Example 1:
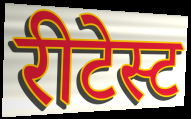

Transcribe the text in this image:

रीटेस्ट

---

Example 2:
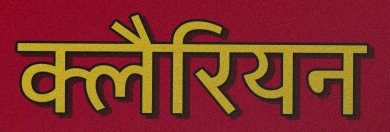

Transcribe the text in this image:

क्लैरियन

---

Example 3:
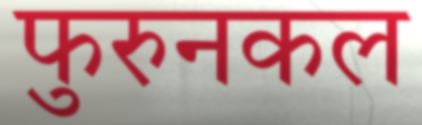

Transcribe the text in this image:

फुरुनकल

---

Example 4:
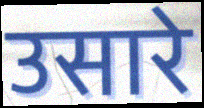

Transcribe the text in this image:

उसारे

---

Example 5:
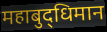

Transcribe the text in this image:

महाबुद्धिमान